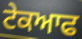
ਟੇਕਆਫ